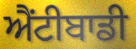
ਐਂਟੀਬਾਡੀ